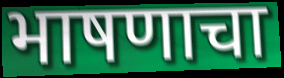
भाषणाचा